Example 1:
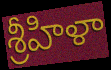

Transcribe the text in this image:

శ్రీహిళా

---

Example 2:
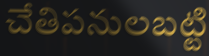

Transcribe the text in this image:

చేతిపనులబట్టి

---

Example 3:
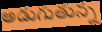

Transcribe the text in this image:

అడుగుతున్న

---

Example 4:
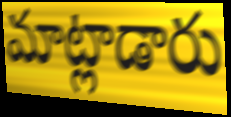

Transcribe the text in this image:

మాట్లాడారు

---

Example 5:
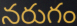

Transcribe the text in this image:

నరుగం